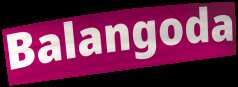
Balangoda